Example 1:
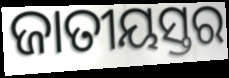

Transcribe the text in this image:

ଜାତୀୟସ୍ତର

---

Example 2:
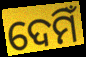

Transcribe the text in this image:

ଦେମିଁ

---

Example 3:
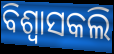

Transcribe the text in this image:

ବିଶ୍ଵାସକଲି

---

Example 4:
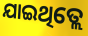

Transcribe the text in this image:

ଯାଇଥିତ୍ଲେ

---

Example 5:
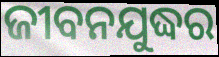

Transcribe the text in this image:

ଜୀବନଯୁଦ୍ଧର